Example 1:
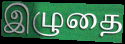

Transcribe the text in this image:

இழுதை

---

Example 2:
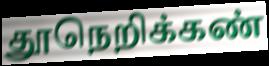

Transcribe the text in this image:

தூநெறிக்கண்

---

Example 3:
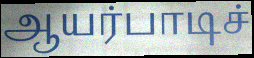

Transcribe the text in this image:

ஆயர்பாடிச்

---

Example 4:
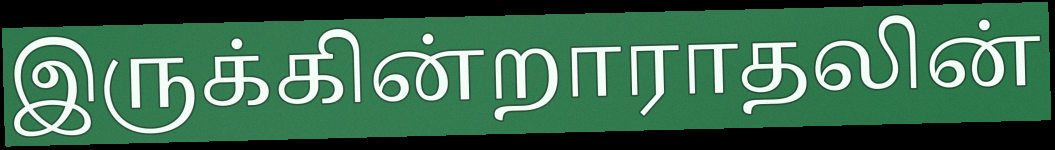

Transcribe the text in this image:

இருக்கின்றாராதலின்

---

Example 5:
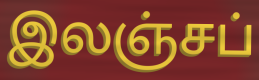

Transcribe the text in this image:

இலஞ்சப்